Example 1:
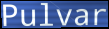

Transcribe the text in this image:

Pulvar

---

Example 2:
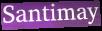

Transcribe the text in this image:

Santimay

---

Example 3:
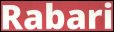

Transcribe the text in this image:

Rabari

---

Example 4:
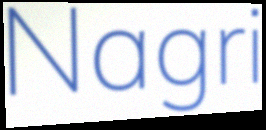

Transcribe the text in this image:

Nagri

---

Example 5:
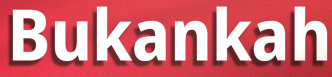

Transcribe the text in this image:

Bukankah